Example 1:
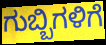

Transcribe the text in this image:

ಗುಬ್ಬಿಗಳಿಗೆ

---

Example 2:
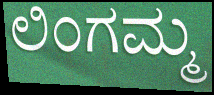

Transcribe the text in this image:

ಲಿಂಗಮ್ಮ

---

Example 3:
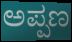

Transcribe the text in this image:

ಅಪ್ಪಣ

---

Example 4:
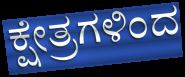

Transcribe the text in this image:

ಕ್ಷೇತ್ರಗಳಿಂದ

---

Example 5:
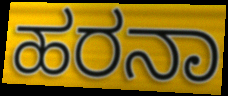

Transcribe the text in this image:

ಹರನಾ